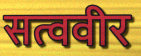
सत्ववीर